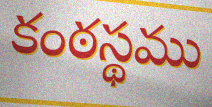
కంఠస్థము